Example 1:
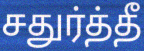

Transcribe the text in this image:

சதுர்த்தீ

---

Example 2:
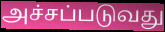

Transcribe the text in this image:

அச்சப்படுவது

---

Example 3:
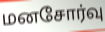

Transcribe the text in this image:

மனசோர்வு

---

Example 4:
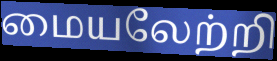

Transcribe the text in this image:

மையலேற்றி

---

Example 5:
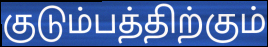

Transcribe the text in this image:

குடும்பத்திற்கும்